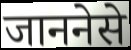
जाननेसे